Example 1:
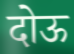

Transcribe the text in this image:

दोऊ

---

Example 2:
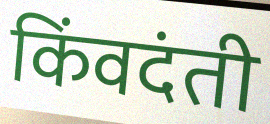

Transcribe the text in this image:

किंवदंती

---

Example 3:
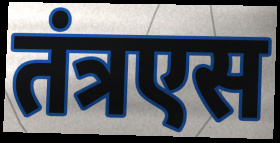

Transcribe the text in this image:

तंत्रएस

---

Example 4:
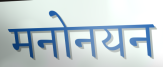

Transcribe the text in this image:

मनोनयन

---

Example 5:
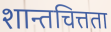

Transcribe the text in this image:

शान्तचित्तता